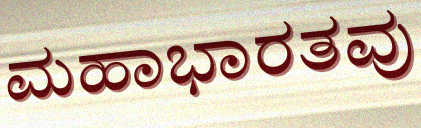
ಮಹಾಭಾರತವು